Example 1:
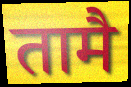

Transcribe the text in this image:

तामै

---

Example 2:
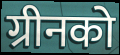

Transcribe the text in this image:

ग्रीनको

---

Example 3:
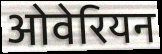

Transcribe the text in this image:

ओवेरियन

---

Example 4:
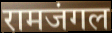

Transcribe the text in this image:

रामजंगल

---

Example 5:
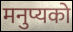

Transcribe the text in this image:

मनुप्यको